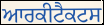
ਆਰਕੀਟੈਕਟਸ